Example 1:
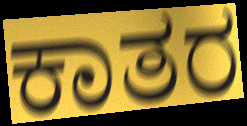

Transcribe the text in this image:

ಕಾತರ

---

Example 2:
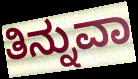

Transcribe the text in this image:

ತಿನ್ನುವಾ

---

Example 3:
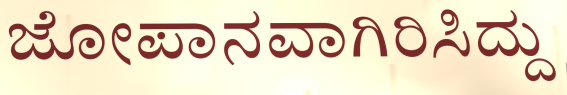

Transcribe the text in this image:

ಜೋಪಾನವಾಗಿರಿಸಿದ್ದು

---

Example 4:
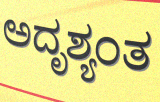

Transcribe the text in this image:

ಅದೃಶ್ಯಂತ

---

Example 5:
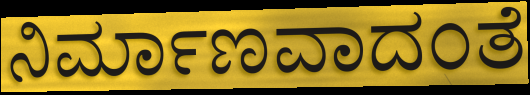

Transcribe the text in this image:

ನಿರ್ಮಾಣವಾದಂತೆ